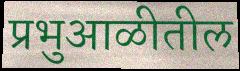
प्रभुआळीतील